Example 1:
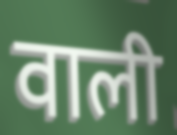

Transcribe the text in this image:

वाली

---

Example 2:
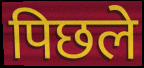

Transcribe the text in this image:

पिछले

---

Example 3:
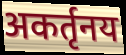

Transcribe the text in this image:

अकर्तृनय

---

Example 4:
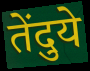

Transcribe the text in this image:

तेंदुये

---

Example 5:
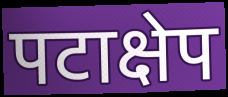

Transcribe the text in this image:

पटाक्षेप